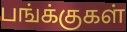
பங்க்குகள்